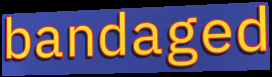
bandaged